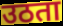
उठता